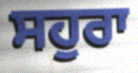
ਸਹੁਰਾ